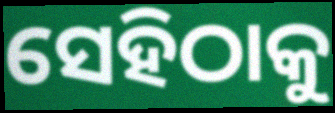
ସେହିଠାକୁ